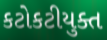
કટોકટીયુક્ત